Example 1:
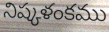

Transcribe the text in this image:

నిష్కళంకము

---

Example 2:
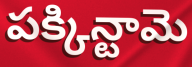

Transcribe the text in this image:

పక్కిన్టామె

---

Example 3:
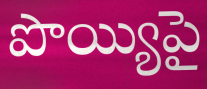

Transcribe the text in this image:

పొయ్యిపై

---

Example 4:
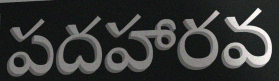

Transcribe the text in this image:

పదహారవ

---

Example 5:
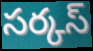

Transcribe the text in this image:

సర్కస్